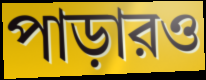
পাড়ারও